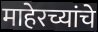
माहेरच्यांचे